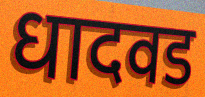
धादवड